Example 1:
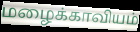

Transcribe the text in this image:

மழைக்காவியம்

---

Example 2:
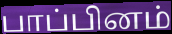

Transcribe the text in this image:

பாப்பினம்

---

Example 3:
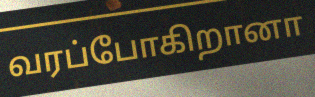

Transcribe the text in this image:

வரப்போகிறானா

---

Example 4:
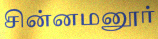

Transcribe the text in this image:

சின்னமனூர்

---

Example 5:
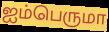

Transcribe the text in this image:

ஐம்பெருமா